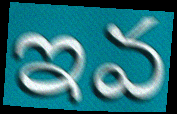
ఇవ